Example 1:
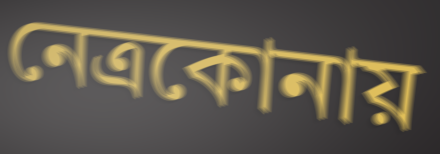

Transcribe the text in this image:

নেত্রকোনায়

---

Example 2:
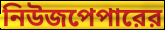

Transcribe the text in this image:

নিউজপেপারের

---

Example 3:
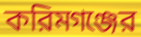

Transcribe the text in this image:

করিমগঞ্জের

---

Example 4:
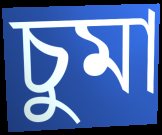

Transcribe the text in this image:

চুমা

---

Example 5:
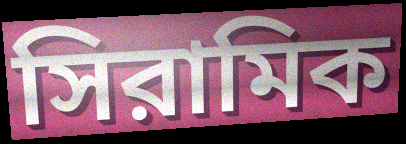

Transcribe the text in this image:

সিরামিক